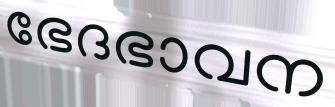
ഭേദഭാവന